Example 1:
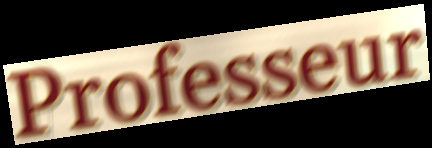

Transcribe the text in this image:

Professeur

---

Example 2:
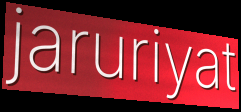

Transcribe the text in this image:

jaruriyat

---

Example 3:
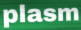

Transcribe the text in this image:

plasm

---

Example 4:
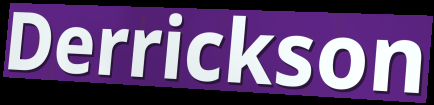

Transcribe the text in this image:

Derrickson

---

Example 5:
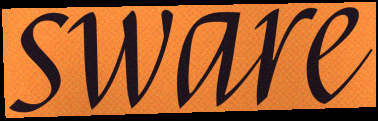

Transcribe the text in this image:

sware